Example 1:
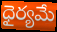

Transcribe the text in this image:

ధైర్యమే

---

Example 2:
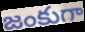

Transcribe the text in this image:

జంకుగా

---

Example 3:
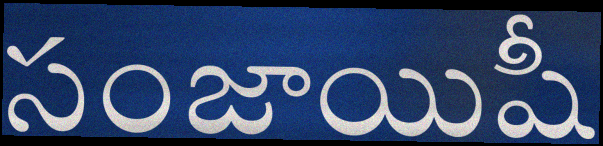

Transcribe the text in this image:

సంజాయిషీ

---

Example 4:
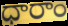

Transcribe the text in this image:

ధారాం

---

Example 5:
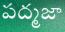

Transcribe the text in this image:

పద్మజా